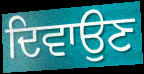
ਦਿਵਾਉਣ